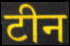
टीन